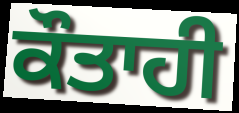
ਕੌਤਾਹੀ